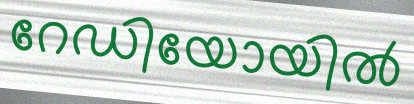
റേഡിയോയിൽ